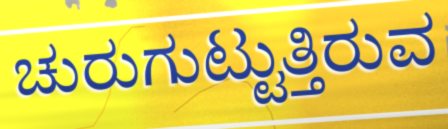
ಚುರುಗುಟ್ಟುತ್ತಿರುವ